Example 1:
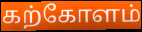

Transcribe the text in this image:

கற்கோளம்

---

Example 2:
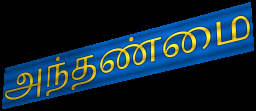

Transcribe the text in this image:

அந்தண்மை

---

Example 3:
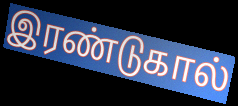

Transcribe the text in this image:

இரண்டுகால்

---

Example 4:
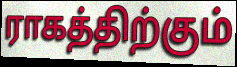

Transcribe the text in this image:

ராகத்திற்கும்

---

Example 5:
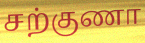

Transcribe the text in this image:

சற்குணா